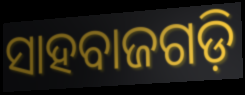
ସାହବାଜଗଡ଼ି